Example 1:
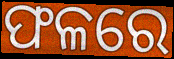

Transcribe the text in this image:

ଫଳରେ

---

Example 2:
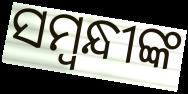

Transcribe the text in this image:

ସମ୍ବନ୍ଧୀଙ୍କ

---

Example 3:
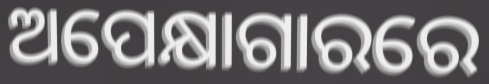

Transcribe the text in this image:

ଅପେକ୍ଷାଗାରରେ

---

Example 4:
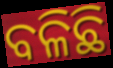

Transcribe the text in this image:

ବଳିଛି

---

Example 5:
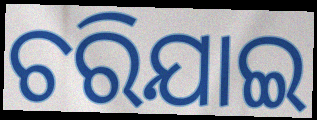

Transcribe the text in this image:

ଚରିଯାଇ